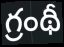
గ్రంథీ